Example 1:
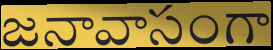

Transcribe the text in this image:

జనావాసంగా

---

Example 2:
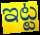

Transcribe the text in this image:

ఇట్ట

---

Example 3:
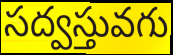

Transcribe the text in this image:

సద్వస్తువగు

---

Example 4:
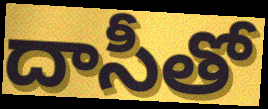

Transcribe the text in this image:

దాసీతో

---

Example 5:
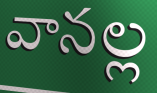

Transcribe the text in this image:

వానల్ల